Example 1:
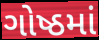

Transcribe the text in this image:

ગોષ્ઠમાં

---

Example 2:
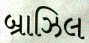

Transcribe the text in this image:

બ્રાઝિલ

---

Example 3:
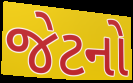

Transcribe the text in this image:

જેટનો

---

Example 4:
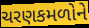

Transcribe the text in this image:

ચરણકમળોને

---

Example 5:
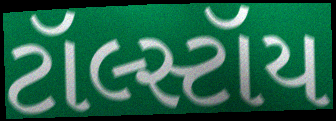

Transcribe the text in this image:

ટૉલ્સ્ટૉય